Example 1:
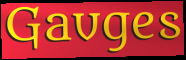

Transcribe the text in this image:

Gauges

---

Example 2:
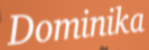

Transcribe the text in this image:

Dominika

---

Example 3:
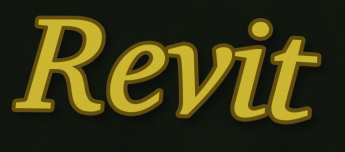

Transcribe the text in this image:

Revit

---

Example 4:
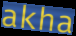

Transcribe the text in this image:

akha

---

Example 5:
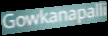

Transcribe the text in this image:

Gowkanapalli